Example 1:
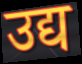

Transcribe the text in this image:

उद्य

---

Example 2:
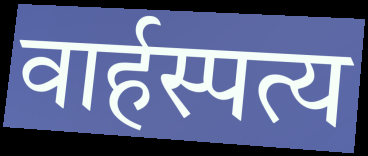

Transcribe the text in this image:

वार्हस्पत्य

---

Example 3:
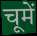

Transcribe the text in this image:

चूमें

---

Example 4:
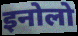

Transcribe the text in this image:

इनोलो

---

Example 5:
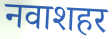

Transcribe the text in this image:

नवाशहर